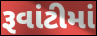
રૂવાંટીમાં